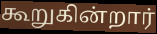
கூறுகின்றார்